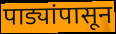
पाड्यांपासून